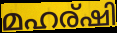
മഹര്ഷി